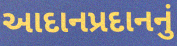
આદાનપ્રદાનનું